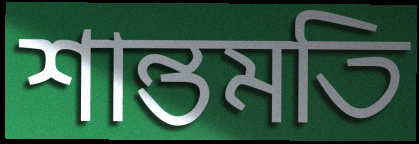
শান্তমতি